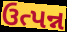
ઉત્પન્ન